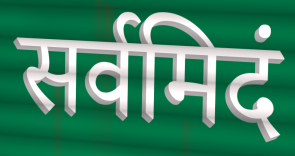
सर्वमिदं